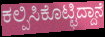
ಕಲ್ಪಿಸಿಕೊಟ್ಟಿದ್ದಾನೆ